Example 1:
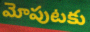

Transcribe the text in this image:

మోపుటకు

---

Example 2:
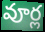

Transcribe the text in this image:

వూర్ల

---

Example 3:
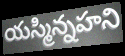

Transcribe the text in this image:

యస్మిన్నహని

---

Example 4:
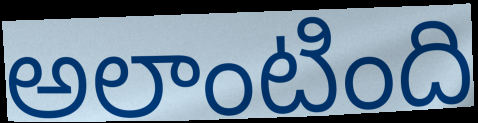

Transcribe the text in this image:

అలాంటింది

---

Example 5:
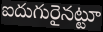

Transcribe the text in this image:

ఐదుగురైనట్టూ